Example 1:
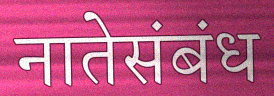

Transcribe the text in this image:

नातेसंबंध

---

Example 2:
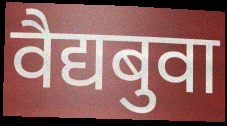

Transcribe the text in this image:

वैद्यबुवा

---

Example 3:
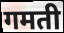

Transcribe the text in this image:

गमती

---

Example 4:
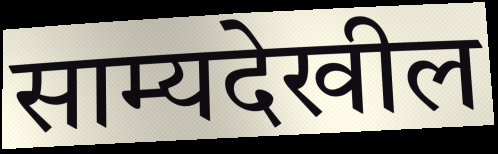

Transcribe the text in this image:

साम्यदेखील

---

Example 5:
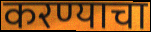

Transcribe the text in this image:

करण्याचा